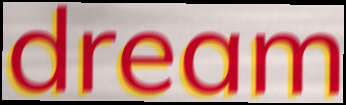
dream